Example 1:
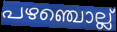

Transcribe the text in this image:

പഴഞ്ചൊല്ല്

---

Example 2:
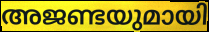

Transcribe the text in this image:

അജണ്ടയുമായി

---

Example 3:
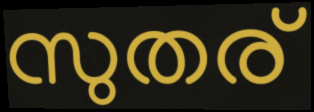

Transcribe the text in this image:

സുതര്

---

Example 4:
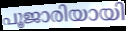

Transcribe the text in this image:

പൂജാരിയായി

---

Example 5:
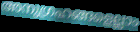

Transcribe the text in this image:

അനുഗ്രഹങ്ങളെല്ലാം